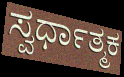
ಸ್ವರ್ಧಾತ್ಮಕ